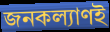
জনকল্যাণই